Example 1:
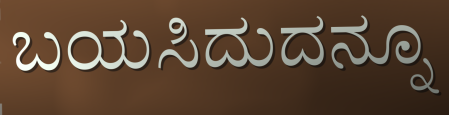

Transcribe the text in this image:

ಬಯಸಿದುದನ್ನೂ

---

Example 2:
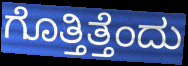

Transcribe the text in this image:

ಗೊತ್ತಿತ್ತೆಂದು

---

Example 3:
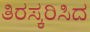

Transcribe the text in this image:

ತಿರಸ್ಕರಿಸಿದ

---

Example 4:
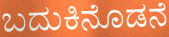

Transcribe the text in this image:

ಬದುಕಿನೊಡನೆ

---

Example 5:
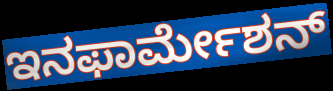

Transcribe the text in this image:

ಇನಫಾರ್ಮೇಶನ್